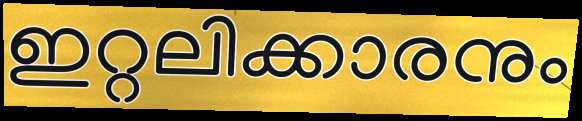
ഇറ്റലിക്കാരനും